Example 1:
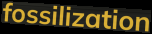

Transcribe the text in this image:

fossilization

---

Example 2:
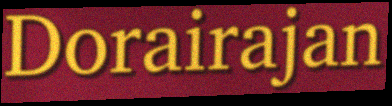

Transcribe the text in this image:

Dorairajan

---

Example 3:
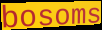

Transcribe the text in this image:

bosoms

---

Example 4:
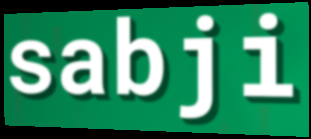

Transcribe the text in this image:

sabji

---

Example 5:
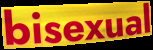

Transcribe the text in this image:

bisexual